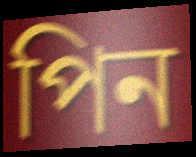
পিন